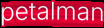
petalman